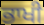
ਭਾਖੀ